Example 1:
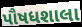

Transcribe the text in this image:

પૌષધશાલા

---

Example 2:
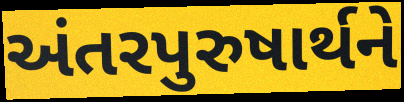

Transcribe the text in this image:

અંતરપુરુષાર્થને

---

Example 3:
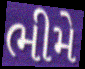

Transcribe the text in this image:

ભીમે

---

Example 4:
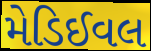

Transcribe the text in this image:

મેડિઈવલ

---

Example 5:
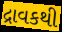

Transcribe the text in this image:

દ્રાવકથી